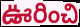
ఊరించి